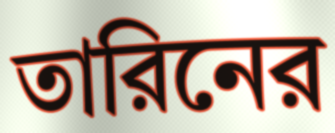
তারিনের